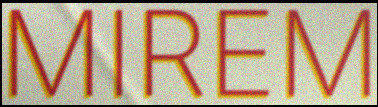
MIREM